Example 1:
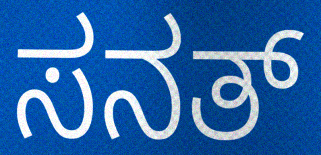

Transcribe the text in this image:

ಸನತ್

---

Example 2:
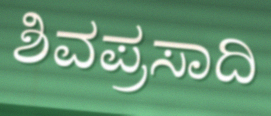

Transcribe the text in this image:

ಶಿವಪ್ರಸಾದಿ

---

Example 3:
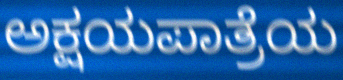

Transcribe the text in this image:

ಅಕ್ಷಯಪಾತ್ರೆಯ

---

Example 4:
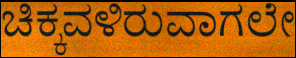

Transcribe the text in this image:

ಚಿಕ್ಕವಳಿರುವಾಗಲೇ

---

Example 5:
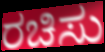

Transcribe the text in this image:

ರಚಿಸು